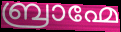
ബ്രാഹ്മേ